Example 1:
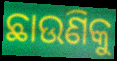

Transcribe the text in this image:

ଛାଉଣିକୁ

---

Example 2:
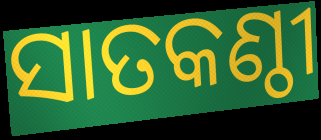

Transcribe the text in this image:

ସାତକଣ୍ଠୀ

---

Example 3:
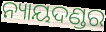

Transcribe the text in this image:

ନ୍ୟାୟଦଣ୍ଡର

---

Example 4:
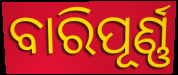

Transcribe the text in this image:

ବାରିପୂର୍ଣ୍ଣ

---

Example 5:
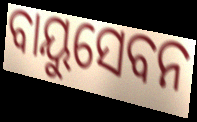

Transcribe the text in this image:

ବାୟୁସେବନ